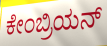
ಕೇಂಬ್ರಿಯನ್